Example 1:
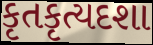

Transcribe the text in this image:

કૃતકૃત્યદશા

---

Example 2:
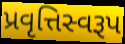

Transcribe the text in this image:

પ્રવૃત્તિસ્વરૂપ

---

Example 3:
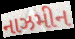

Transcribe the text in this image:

નાઝમીન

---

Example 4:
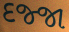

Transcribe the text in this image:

દજ્જા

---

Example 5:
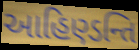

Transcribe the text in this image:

આહિણ્ડન્તિ